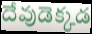
దేవుడెక్కడ